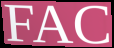
FAC